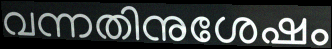
വന്നതിനുശേഷം